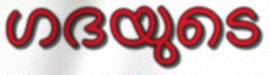
ഗദയുടെ